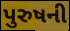
પુરુષની